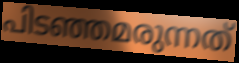
പിടഞ്ഞമരുന്നത്